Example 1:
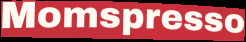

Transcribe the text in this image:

Momspresso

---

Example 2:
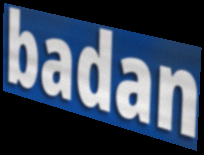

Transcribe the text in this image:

badan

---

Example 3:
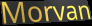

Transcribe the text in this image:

Morvan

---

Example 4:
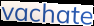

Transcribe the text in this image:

vachate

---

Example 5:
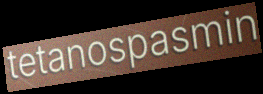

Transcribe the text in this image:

tetanospasmin